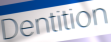
Dentition